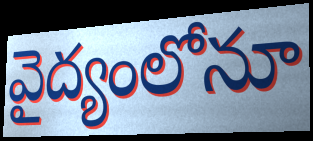
వైద్యంలోనూ